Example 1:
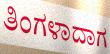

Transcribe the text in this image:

ತಿಂಗಳಾದಾಗ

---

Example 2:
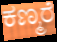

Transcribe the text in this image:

ಕಣ್ಮರೆ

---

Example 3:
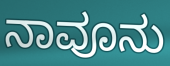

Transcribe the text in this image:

ನಾವೂನು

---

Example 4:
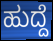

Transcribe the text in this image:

ಹುದ್ದೆ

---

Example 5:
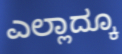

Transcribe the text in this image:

ಎಲ್ಲಾದ್ಕೂ